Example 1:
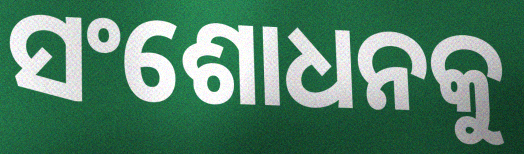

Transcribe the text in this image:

ସଂଶୋଧନକୁ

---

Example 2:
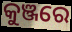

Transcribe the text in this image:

କୁଞ୍ଜରେ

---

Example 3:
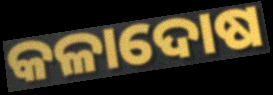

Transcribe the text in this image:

କଳାଦୋଷ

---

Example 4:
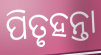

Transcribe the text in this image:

ପିତୃହନ୍ତା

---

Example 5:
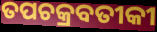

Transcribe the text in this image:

ତପଚକ୍ରବତୀକୀ